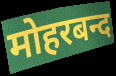
मोहरबन्द